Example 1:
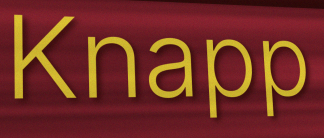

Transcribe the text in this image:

Knapp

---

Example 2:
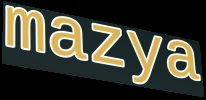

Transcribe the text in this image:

mazya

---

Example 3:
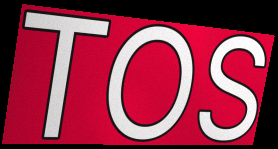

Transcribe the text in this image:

TOS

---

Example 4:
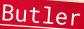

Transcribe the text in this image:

Butler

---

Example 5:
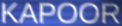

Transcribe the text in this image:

KAPOOR